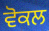
ਵੋਕਲ